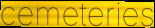
cemeteries